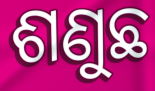
ଶଣୁଛ